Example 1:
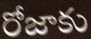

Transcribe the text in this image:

రోజాకు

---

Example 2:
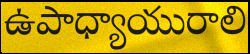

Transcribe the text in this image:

ఉపాధ్యాయురాలి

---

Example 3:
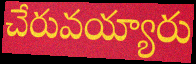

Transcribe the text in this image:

చేరువయ్యారు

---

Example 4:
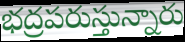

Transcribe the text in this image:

భద్రపరుస్తున్నారు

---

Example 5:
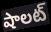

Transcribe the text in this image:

షాలట్